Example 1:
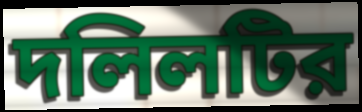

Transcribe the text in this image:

দলিলটির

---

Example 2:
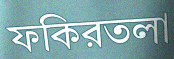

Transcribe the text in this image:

ফকিরতলা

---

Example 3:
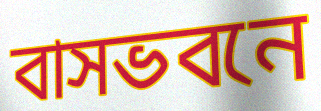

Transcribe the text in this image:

বাসভবনে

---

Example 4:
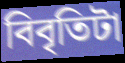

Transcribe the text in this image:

বিবৃতিটা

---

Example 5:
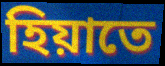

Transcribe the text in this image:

হিয়াতে